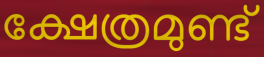
ക്ഷേത്രമുണ്ട്